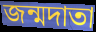
জন্মদাতা